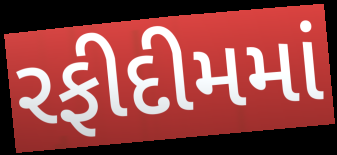
રફીદીમમાં